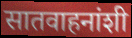
सातवाहनांशी